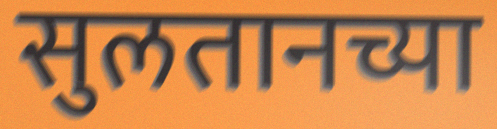
सुलतानच्या